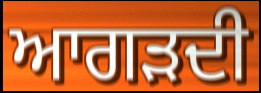
ਆਗੜਦੀ